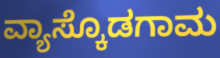
ವ್ಯಾಸ್ಕೊಡಗಾಮ